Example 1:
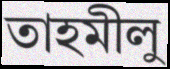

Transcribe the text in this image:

তাহমীলু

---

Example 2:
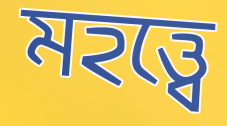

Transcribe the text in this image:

মহত্ত্বে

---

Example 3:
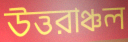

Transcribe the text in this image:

উত্তরাঞ্চল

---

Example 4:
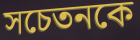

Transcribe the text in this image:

সচেতনকে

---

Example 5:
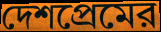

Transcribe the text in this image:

দেশপ্রেমের